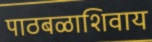
पाठबळाशिवाय